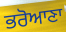
ਭਰੋਆਣਾ